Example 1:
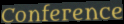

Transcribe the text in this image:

Conference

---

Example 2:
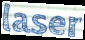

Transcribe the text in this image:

laser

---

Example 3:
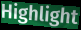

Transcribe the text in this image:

Highlight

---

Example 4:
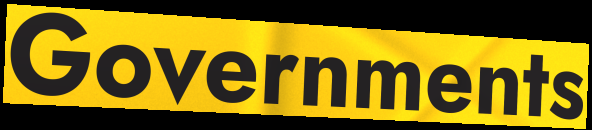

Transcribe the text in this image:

Governments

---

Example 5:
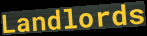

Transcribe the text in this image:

Landlords